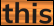
this